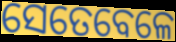
ସେତେବେଳେ